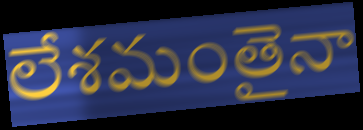
లేశమంతైనా